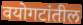
वयोगटांतील